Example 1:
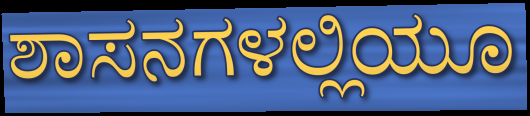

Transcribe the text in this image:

ಶಾಸನಗಳಲ್ಲಿಯೂ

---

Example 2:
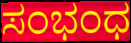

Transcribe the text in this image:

ಸಂಭಂಧ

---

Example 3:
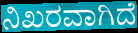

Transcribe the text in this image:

ನಿಖರವಾಗಿದೆ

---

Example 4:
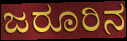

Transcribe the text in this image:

ಜರೂರಿನ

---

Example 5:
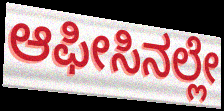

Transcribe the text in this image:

ಆಫೀಸಿನಲ್ಲೇ